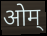
ओम्